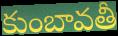
కుంబావతీ